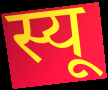
स्यू